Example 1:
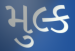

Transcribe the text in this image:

મુલ્ક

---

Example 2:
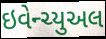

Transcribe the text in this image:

ઇવેન્ચ્યુઅલ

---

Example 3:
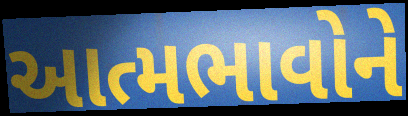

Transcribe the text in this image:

આત્મભાવોને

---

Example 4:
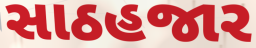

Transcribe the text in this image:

સાઠહજાર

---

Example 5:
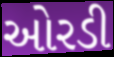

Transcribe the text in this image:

ઓરડી